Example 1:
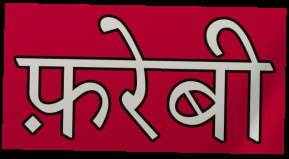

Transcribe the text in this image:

फ़रेबी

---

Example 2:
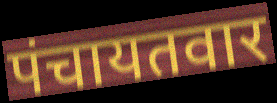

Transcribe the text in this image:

पंचायतवार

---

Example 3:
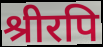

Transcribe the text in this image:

श्रीरपि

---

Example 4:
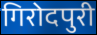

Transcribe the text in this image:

गिरोदपुरी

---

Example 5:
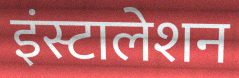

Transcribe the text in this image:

इंस्टालेशन